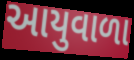
આયુવાળા